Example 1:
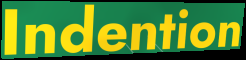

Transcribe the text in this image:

Indention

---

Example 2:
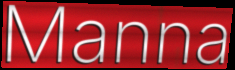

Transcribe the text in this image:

Manna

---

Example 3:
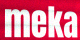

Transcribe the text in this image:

meka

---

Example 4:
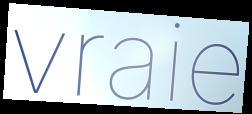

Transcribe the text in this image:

vraie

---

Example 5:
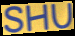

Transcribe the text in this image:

SHU